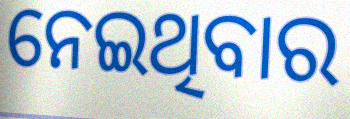
ନେଇଥିବାର